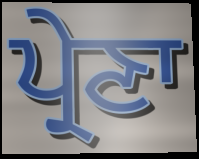
ਪ੍ਰੇਣਾ